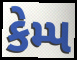
કેમ્પ